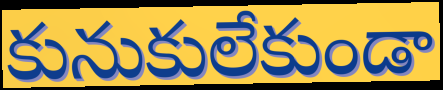
కునుకులేకుండా